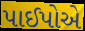
પાઈપોએ